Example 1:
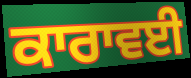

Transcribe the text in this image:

ਕਾਰਾਵਈ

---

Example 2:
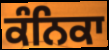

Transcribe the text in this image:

ਕੰਨਿਕਾ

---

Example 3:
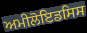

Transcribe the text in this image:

ਅਮੀਲੋਇਡਸਿਸ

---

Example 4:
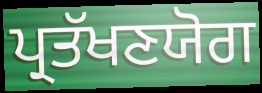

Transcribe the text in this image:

ਪ੍ਰਤੱਖਣਯੋਗ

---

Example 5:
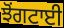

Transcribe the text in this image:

ਝੋਂਗਟਾਈ